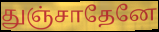
துஞ்சாதேனே